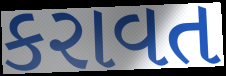
કરાવત